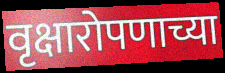
वृक्षारोपणाच्या